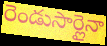
రెండుసార్లైనా